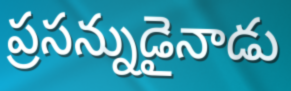
ప్రసన్నుడైనాడు